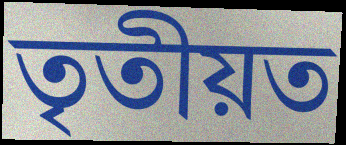
তৃতীয়ত